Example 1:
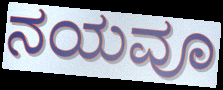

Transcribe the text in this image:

ನಯವೂ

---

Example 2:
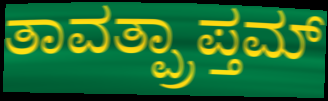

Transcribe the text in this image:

ತಾವತ್ಪ್ರಾಪ್ತಮ್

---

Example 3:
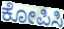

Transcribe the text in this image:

ಕೋಪಿಸಿ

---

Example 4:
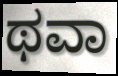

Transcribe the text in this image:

ಥವಾ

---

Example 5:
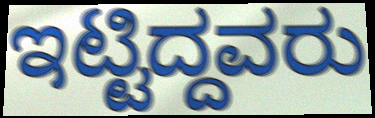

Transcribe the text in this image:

ಇಟ್ಟಿದ್ದವರು